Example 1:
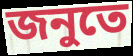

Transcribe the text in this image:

জনুতে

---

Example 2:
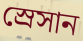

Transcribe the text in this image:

স্রেসান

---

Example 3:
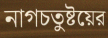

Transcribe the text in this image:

নাগচতুষ্টয়ের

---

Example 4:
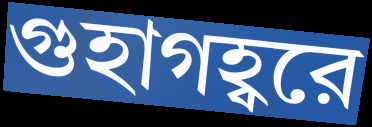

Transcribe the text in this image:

গুহাগহ্বরে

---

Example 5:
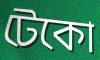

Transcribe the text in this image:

টেকো